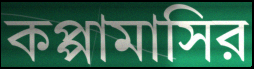
কপ্পামাসির